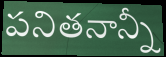
పనితనాన్నీ